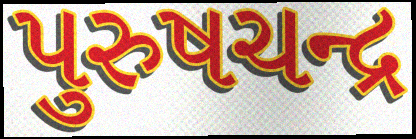
પુરુષચન્દ્ર